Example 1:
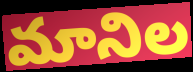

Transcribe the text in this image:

మానిల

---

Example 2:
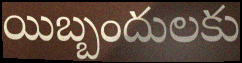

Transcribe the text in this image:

యిబ్బందులకు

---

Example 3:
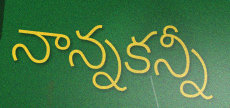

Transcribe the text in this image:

నాన్నకన్నీ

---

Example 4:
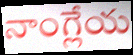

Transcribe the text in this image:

నాంగ్లేయ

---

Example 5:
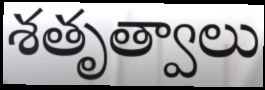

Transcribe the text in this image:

శతృత్వాలు